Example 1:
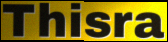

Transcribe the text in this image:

Thisra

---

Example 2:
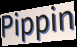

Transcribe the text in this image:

Pippin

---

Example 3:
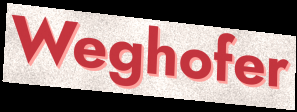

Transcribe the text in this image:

Weghofer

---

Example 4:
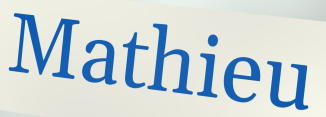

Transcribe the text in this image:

Mathieu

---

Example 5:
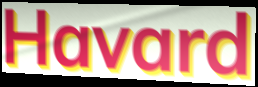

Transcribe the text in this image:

Havard